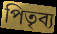
পিতৃব্য